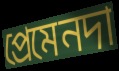
প্রেমেনদা